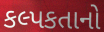
કલ્પકતાનો